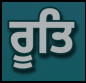
ਰੂਤਿ